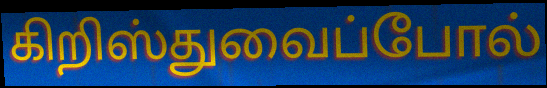
கிறிஸ்துவைப்போல்